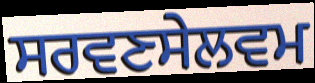
ਸਰਵਣਸੇਲਵਮ